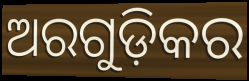
ଅରଗୁଡ଼ିକର